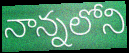
నాన్నలోని